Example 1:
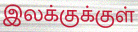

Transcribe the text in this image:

இலக்குக்குள்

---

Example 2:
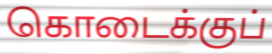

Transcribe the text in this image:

கொடைக்குப்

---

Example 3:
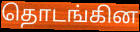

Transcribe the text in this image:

தொடங்கின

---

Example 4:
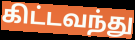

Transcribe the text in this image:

கிட்டவந்து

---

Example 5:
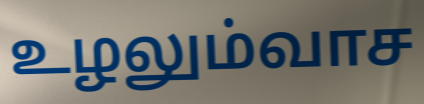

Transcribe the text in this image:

உழலும்வாச